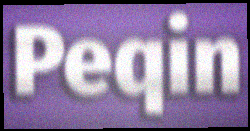
Peqin